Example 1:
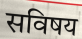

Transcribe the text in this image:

सविषय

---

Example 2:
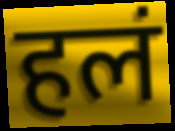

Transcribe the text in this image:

हलं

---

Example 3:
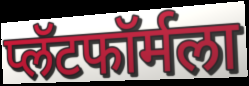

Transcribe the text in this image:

प्लॅटफॉर्मला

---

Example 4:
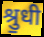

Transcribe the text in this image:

श्रु॒धी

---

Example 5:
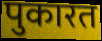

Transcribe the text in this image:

पुकारत